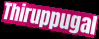
Thiruppugal